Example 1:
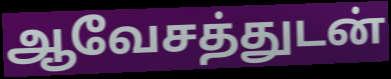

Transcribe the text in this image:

ஆவேசத்துடன்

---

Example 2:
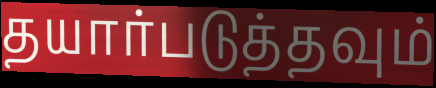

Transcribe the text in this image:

தயார்படுத்தவும்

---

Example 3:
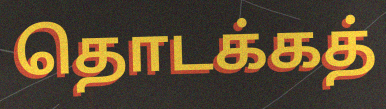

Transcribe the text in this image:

தொடக்கத்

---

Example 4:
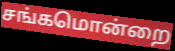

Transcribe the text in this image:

சங்கமொன்றை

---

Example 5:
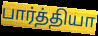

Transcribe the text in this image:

பார்த்தியா